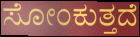
ಸೋಂಕುತ್ತದೆ